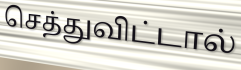
செத்துவிட்டால்